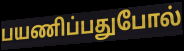
பயணிப்பதுபோல்